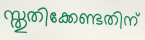
സ്തുതിക്കേണ്ടതിന്